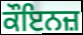
ਕੌਇਨਜ਼